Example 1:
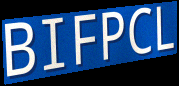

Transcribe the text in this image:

BIFPCL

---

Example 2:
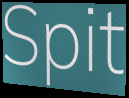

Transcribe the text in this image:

Spit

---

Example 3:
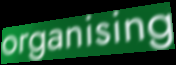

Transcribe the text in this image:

organising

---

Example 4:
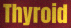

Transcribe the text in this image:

Thyroid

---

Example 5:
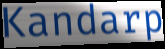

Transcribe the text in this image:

Kandarp